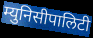
म्युनिसीपालिटी